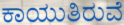
ಕಾಯುತಿರುವೆ